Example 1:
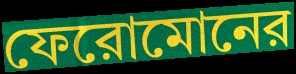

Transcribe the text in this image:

ফেরোমোনের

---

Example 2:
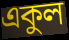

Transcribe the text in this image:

একুল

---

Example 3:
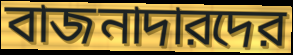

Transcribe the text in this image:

বাজনাদারদের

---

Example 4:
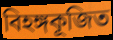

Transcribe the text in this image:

বিহঙ্গকূজিত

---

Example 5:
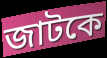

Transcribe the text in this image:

জাটকে